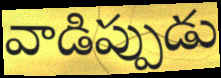
వాడిప్పుడు